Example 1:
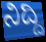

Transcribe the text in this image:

ನಿದ್ದಿ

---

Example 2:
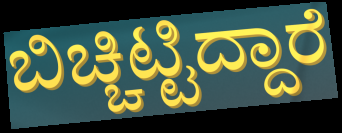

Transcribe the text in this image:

ಬಿಚ್ಚಿಟ್ಟಿದ್ದಾರೆ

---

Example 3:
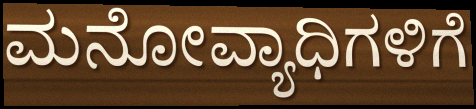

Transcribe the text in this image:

ಮನೋವ್ಯಾಧಿಗಳಿಗೆ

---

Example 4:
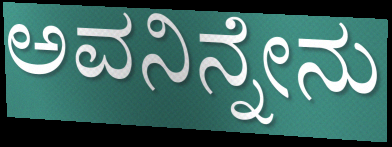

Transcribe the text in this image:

ಅವನಿನ್ನೇನು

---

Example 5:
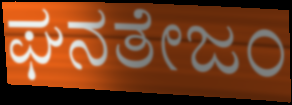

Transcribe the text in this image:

ಘನತೇಜಂ